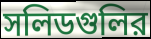
সলিডগুলির